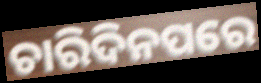
ଚାରିଦିନପରେ